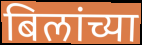
बिलांच्या